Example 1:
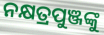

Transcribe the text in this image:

ନକ୍ଷତ୍ରପୁଞ୍ଜଙ୍କୁ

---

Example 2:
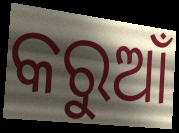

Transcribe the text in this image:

କରୁଆଁ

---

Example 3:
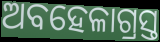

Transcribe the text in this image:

ଅବହେଳାଗ୍ରସ୍ତ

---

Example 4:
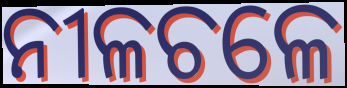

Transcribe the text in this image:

ନୀଳଚଳେ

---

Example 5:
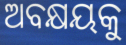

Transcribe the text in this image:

ଅବକ୍ଷୟକୁ